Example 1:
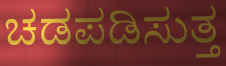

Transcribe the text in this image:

ಚಡಪಡಿಸುತ್ತ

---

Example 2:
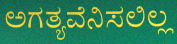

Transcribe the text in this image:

ಅಗತ್ಯವೆನಿಸಲಿಲ್ಲ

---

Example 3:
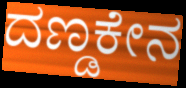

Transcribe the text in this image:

ದಣ್ಡಕೇನ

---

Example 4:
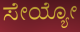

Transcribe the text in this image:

ಸೇಯ್ಯೋ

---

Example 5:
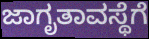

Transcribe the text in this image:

ಜಾಗೃತಾವಸ್ಥೆಗೆ